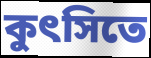
কুৎসিতে